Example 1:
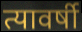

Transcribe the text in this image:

त्यावर्षी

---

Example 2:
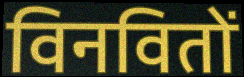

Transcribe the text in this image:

विनवितों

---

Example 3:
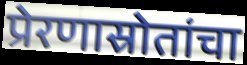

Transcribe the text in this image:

प्रेरणास्रोतांचा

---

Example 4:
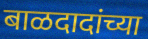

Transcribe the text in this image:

बाळदादांच्या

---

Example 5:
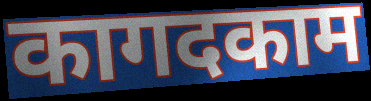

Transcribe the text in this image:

कागदकाम